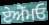
ਏਐੱਮਓ